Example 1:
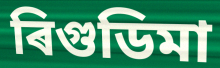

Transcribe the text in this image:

ৰিগুডিমা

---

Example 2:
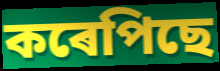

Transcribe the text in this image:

কৰেপিছে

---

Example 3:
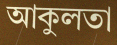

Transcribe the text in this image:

আকুলতা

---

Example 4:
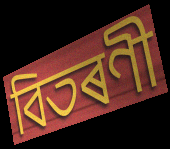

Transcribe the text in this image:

বিতৰণী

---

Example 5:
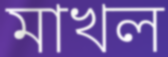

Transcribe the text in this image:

মাখল